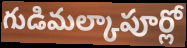
గుడిమల్కాపూర్లో